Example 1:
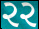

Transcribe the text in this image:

રર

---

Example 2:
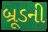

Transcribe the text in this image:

બ્રૂડની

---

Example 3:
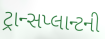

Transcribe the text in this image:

ટ્રાન્સપ્લાન્ટની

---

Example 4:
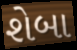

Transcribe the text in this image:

શેબા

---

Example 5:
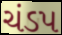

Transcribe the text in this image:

ચંડપ